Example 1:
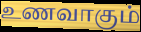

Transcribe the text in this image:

உணவாகும்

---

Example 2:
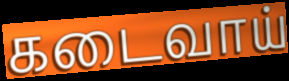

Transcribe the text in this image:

கடைவாய்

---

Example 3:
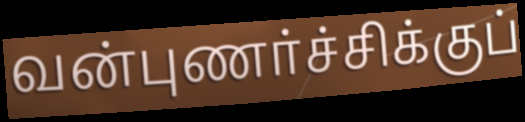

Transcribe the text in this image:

வன்புணர்ச்சிக்குப்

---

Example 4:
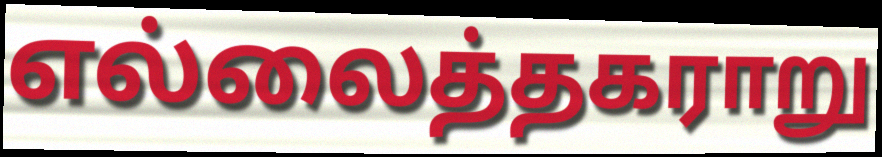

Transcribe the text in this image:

எல்லைத்தகராறு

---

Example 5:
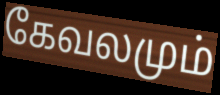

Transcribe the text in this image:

கேவலமும்